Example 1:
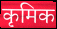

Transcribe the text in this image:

कृमिक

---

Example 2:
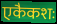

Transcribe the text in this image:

एकैकशः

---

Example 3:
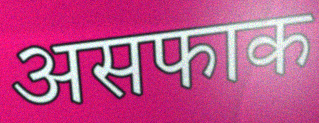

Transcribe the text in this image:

असफाक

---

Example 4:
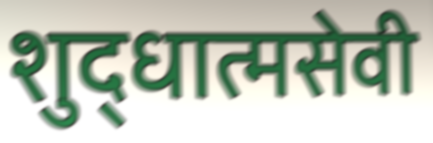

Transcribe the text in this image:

शुद्धात्मसेवी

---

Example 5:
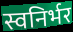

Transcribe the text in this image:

स्वनिर्भर